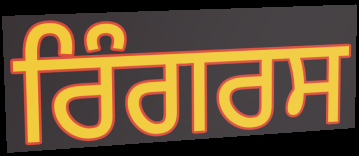
ਰਿੰਗਰਸ